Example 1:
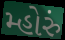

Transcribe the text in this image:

મ્હોરું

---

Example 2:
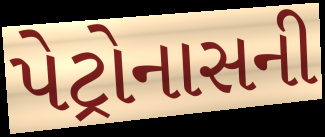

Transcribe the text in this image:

પેટ્રોનાસની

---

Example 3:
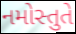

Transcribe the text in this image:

નમોસ્તુતે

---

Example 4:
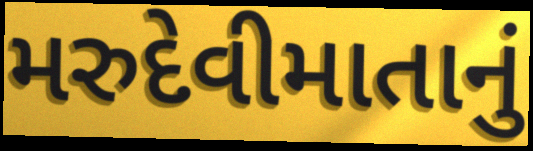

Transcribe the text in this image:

મરુદેવીમાતાનું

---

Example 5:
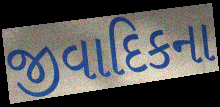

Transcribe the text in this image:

જીવાદિકના